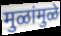
मुळांमुळे